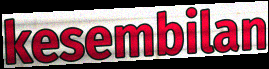
kesembilan